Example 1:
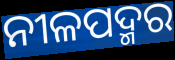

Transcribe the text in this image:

ନୀଳପଦ୍ମର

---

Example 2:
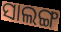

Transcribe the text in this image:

ସାଲଙ୍ଗ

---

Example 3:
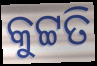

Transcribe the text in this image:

କୁଟ୍ଟତି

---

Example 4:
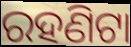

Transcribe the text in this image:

ରହଣିଟା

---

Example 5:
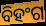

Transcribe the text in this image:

ବିହଂଗ